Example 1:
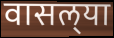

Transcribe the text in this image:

वासल्या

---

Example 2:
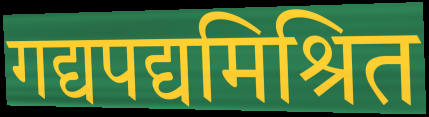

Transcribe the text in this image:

गद्यपद्यमिश्रित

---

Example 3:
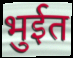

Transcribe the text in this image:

भुईत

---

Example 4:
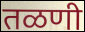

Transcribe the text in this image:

तळणी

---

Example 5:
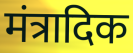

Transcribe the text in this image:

मंत्रादिक